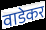
वाडेकर